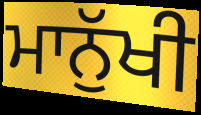
ਮਾਨੁੱਖੀ